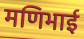
मणिभाई